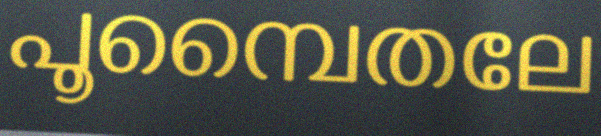
പൂമ്പൈതലേ